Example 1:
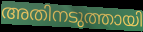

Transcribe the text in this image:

അതിനടുത്തായി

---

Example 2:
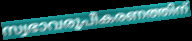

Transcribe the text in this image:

സ്വഭാവരൂപീകരണത്തിന്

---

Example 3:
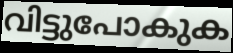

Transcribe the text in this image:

വിട്ടുപോകുക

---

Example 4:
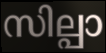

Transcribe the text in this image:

സില്പാ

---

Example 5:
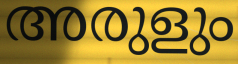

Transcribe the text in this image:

അരുളും